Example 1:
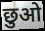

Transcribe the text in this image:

छुओ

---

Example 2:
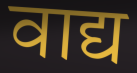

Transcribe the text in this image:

वाद्य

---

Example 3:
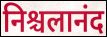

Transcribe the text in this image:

निश्चलानंद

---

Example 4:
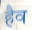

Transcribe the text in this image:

हैव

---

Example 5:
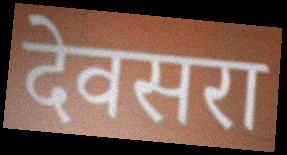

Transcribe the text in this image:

देवसरा